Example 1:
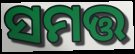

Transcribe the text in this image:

ସମତ୍ତ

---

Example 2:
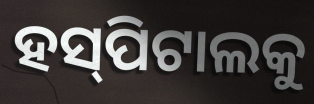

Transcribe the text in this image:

ହସ୍‌ପିଟାଲକୁ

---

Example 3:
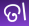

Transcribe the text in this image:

ତା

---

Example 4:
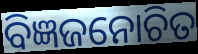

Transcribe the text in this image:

ବିଜ୍ଞଜନୋଚିତ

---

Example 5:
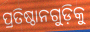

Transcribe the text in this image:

ପ୍ରତିଷ୍ଠାନଗୁଡ଼ିକୁ